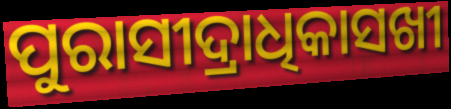
ପୁରାସୀଦ୍ରାଧିକାସଖୀ